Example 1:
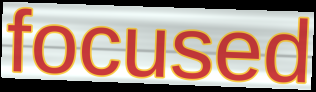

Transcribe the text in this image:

focused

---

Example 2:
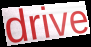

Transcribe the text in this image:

drive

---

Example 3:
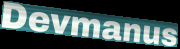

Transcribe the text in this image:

Devmanus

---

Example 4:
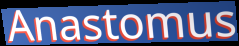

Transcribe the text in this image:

Anastomus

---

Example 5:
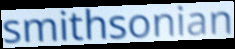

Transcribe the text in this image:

smithsonian